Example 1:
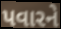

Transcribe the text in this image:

પવારને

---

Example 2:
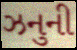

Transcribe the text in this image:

ઝનુની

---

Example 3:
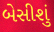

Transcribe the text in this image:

બેસીશું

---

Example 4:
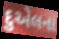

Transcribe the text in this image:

દુએલના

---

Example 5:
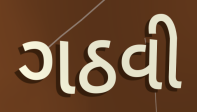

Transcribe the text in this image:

ગઠવી